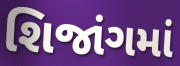
શિજાંગમાં